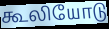
கூலியோடு